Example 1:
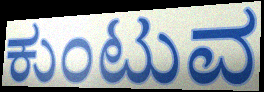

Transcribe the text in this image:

ಕುಂಟುವ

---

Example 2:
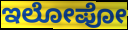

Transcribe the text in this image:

ಇಲೋಪೋ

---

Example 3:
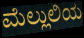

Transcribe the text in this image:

ಮೆಲ್ಲುಲಿಯ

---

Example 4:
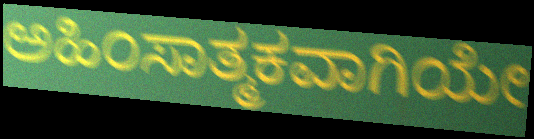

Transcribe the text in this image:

ಅಹಿಂಸಾತ್ಮಕವಾಗಿಯೇ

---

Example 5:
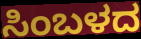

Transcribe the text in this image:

ಸಿಂಬಳದ